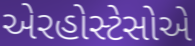
એરહોસ્ટેસોએ